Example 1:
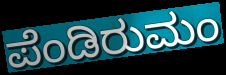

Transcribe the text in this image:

ಪೆಂಡಿರುಮಂ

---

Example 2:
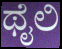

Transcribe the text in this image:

ಥೈಲಿ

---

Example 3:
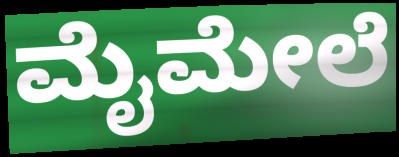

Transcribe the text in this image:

ಮೈಮೇಲೆ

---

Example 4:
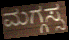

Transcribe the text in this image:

ಮಗ್ಗಸ್ಸ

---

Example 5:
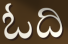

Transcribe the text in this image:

ಓದಿ